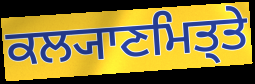
ਕਲ੍ਯਾਣਮਿਤ੍ਤੇ